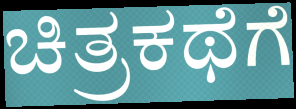
ಚಿತ್ರಕಥೆಗೆ